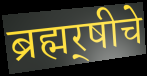
ब्रह्मर्षीचे